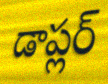
డాప్లర్